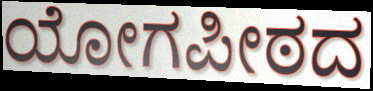
ಯೋಗಪೀಠದ